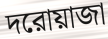
দরোয়াজা